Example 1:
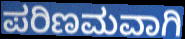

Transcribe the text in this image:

ಪರಿಣಮವಾಗಿ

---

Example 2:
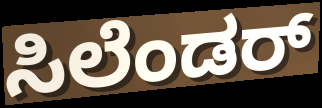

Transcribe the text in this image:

ಸಿಲೆಂಡರ್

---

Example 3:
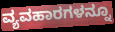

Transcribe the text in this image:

ವ್ಯವಹಾರಗಳನ್ನೂ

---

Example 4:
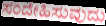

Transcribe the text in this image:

ಸಂದೇಹಿಸುವುದು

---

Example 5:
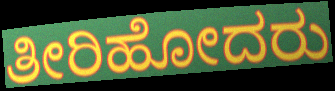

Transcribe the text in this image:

ತೀರಿಹೋದರು